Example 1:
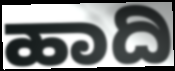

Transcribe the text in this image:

ಹಾದಿ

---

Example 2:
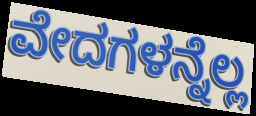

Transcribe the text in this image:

ವೇದಗಳನ್ನೆಲ್ಲ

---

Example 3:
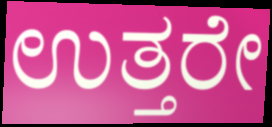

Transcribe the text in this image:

ಉತ್ತರೇ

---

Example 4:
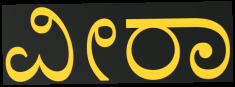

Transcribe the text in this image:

ವೀರಾ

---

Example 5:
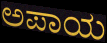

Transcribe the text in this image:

ಅಪಾಯ